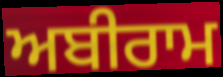
ਅਬੀਰਾਮ